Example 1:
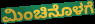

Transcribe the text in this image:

ಮಿಂಚಿನೊಳಗೆ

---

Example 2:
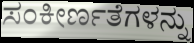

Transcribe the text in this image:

ಸಂಕೀರ್ಣತೆಗಳನ್ನು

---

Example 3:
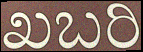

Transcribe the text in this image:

ಖಬರಿ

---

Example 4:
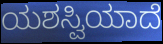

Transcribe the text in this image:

ಯಶಸ್ವಿಯಾದೆ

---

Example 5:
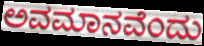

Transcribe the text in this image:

ಅವಮಾನವೆಂದು